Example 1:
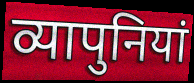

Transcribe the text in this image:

व्यापुनियां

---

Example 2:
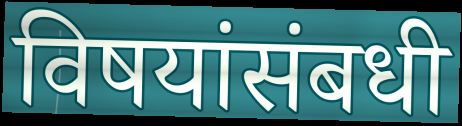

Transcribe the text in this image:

विषयांसंबधी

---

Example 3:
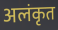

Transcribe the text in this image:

अलंकृत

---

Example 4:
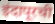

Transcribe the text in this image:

इंदापूरची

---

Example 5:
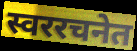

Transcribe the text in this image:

स्वररचनेत